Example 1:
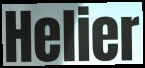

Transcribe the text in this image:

Helier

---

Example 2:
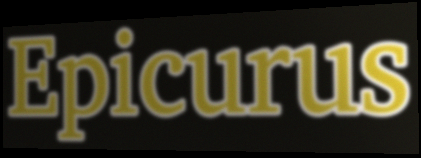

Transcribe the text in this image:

Epicurus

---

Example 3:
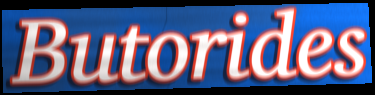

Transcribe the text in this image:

Butorides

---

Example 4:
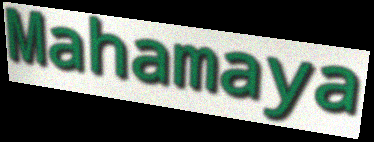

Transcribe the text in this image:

Mahamaya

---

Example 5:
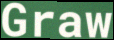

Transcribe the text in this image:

Graw